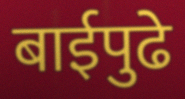
बाईपुढे